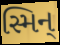
સ્મિન્